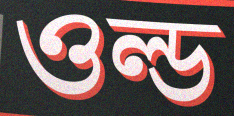
ওল্ড